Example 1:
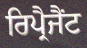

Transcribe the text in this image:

ਰਿਪ੍ਰੈਜੈਂਟ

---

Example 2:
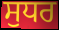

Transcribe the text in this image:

ਸੁਧਰ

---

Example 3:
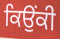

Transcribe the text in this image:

ਕਿਉਂਕੀ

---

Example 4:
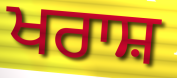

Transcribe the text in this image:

ਖਰਾਸ਼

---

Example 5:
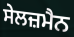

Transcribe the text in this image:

ਸੇਲਜ਼ਮੈਨ